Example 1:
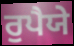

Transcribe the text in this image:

ਰੁਪੈਯੇ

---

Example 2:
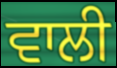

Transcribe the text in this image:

ਵਾਲੀ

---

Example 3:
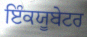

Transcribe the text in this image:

ਇੰਕਯੂਬੇਟਰ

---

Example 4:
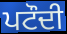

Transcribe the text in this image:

ਪਟੌਦੀ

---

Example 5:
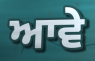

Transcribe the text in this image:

ਆਵੇ